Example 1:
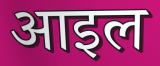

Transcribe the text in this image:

आइल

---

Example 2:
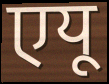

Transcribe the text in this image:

एयू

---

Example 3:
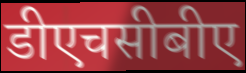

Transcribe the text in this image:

डीएचसीबीए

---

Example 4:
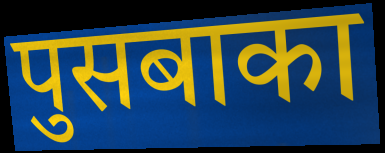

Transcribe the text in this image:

पुसबाका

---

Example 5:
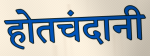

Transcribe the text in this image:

होतचंदानी